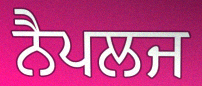
ਨੈਪਲਜ